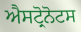
ਐਸਟ੍ਰੋਨੋਟਸ